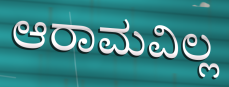
ಆರಾಮವಿಲ್ಲ